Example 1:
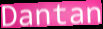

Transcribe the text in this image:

Dantan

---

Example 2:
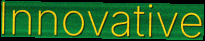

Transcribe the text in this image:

Innovative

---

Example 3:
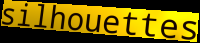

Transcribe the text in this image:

silhouettes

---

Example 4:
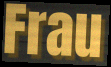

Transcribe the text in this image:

Frau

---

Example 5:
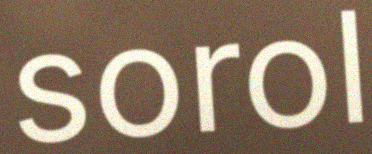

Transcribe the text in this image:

sorol